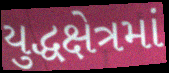
યુદ્ધક્ષેત્રમાં